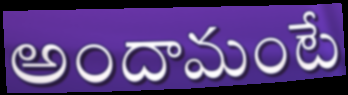
అందామంటే